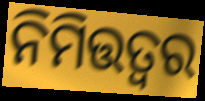
ନିମିତ୍ତତ୍ଵର